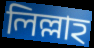
লিল্লাহ